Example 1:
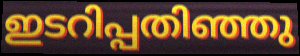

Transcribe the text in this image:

ഇടറിപ്പതിഞ്ഞു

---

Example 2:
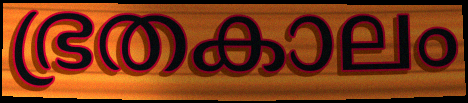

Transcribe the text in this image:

ഭ്രതകാലം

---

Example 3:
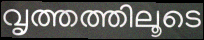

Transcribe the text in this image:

വൃത്തത്തിലൂടെ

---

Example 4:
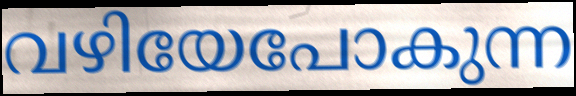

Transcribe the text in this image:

വഴിയേപോകുന്ന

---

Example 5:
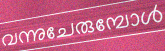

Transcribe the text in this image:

വന്നുചേരുമ്പോൾ